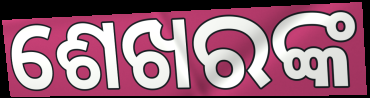
ଶେଖରଙ୍କ